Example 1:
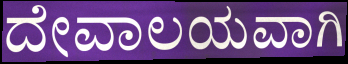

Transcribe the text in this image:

ದೇವಾಲಯವಾಗಿ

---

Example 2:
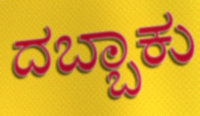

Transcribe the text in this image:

ದಬ್ಬಾಕು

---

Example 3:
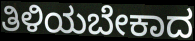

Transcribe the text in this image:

ತಿಳಿಯಬೇಕಾದ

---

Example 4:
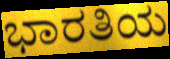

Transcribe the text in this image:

ಭಾರತಿಯ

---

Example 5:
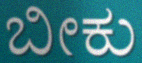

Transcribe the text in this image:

ಬೀಕು